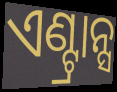
ଏଣ୍ଟ୍ରାନ୍ସ